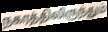
நகரத்திலிருந்தும்